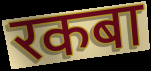
रकबा